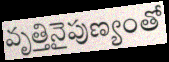
వృత్తినైపుణ్యంతో